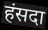
हंसदा